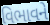
વિભાવને